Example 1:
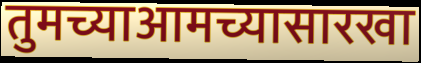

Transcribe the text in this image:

तुमच्याआमच्यासारखा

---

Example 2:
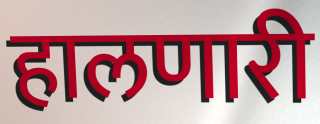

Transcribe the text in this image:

हालणारी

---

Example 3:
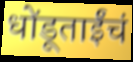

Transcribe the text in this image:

धोंडूताईंचं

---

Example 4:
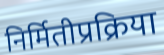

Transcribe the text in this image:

निर्मितीप्रक्रिया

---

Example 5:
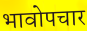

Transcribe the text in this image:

भावोपचार